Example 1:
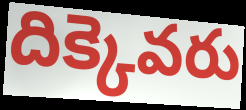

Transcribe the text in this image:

దిక్కెవరు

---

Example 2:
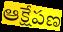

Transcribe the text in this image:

ఆక్షేపణ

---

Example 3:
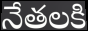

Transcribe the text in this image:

నేతలకి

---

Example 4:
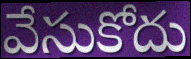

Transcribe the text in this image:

వేసుకోదు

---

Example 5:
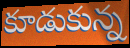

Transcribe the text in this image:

కూడుకున్న